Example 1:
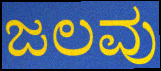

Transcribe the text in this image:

ಜಲವು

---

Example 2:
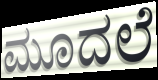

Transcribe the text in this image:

ಮೂದಲೆ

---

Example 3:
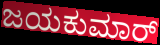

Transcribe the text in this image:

ಜಯಕುಮಾರ್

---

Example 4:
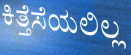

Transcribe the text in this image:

ಕಿತ್ತೆಸೆಯಲಿಲ್ಲ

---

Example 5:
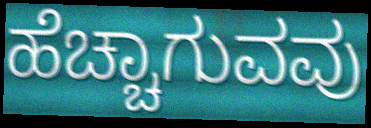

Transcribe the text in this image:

ಹೆಚ್ಚಾಗುವವು